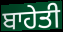
ਬਾਹੇਤੀ